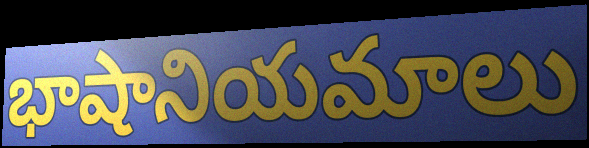
భాషానియమాలు